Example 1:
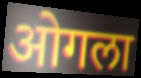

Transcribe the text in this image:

ओगला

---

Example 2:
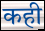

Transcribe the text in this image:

कही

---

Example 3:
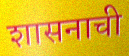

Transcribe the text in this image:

शासनाची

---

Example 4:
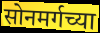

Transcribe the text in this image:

सोनमर्गच्या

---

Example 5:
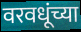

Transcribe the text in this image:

वरवधूंच्या